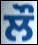
ਲੌ